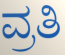
ವ್ರತಿ